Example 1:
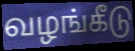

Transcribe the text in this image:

வழங்கீடு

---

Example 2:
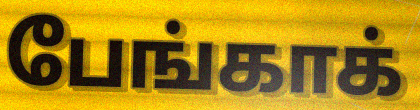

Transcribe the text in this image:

பேங்காக்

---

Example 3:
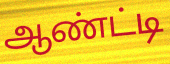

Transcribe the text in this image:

ஆண்ட்டி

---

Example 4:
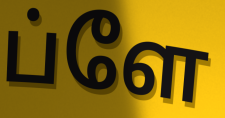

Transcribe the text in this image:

ப்ளே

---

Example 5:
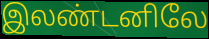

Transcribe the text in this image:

இலண்டனிலே